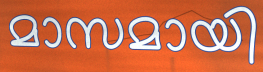
മാസമായി